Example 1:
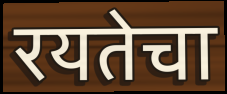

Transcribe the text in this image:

रयतेचा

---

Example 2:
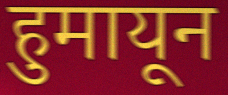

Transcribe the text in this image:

हुमायून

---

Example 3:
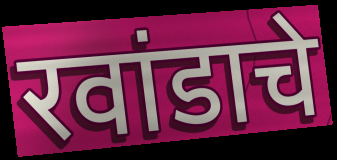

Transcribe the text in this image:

रवांडाचे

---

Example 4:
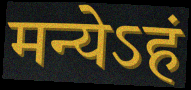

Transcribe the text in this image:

मन्येऽहं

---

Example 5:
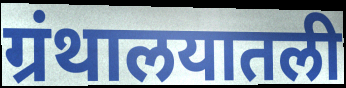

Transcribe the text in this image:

ग्रंथालयातली